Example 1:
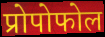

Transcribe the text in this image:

प्रोपोफोल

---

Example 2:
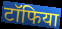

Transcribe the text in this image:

टॉफिया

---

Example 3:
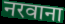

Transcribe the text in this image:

नरवाना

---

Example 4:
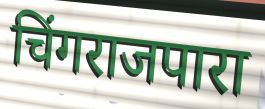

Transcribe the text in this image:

चिंगराजपारा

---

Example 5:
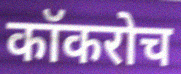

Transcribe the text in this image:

कॉकरोच